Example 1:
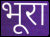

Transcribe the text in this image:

भूरा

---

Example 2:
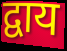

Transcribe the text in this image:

द्वाय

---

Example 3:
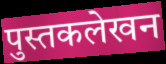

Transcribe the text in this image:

पुस्तकलेखन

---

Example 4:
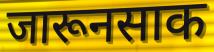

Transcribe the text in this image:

जारूनसाक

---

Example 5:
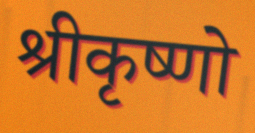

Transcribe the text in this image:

श्रीकृष्णो